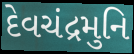
દેવચંદ્રમુનિ